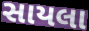
સાયલા